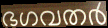
ഭഗവതർ